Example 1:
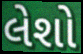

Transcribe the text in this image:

લેશો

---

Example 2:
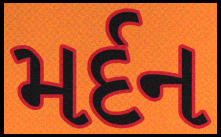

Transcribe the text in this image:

મર્દન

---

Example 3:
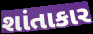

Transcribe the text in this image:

શાંતાકાર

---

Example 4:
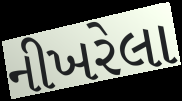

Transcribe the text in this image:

નીખરેલા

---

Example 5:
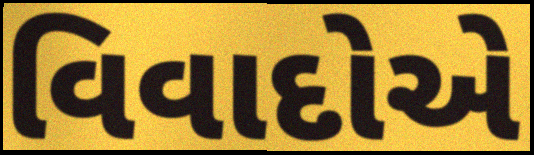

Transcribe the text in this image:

વિવાદોએ